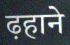
ढ़हाने